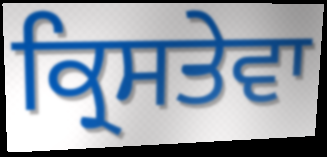
ਕ੍ਰਿਸਤੇਵਾ